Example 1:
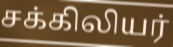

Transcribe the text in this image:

சக்கிலியர்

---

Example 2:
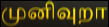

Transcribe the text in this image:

முனிவுறா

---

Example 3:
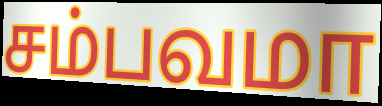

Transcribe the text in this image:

சம்பவமா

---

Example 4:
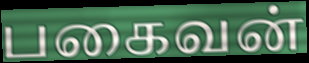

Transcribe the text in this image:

பகைவன்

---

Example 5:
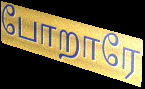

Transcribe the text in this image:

போறாரே